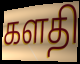
களதி